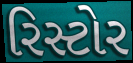
રિસ્ટોર